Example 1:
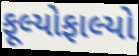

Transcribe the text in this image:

ફૂલ્યોફાલ્યો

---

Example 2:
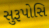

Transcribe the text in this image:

સુરૂપોસિ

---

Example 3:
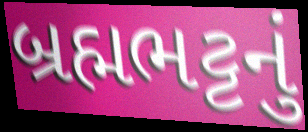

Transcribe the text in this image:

બ્રહ્મભટ્ટનું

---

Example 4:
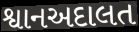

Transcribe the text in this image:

શ્વાનઅદાલત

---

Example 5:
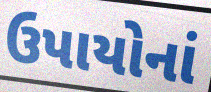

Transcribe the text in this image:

ઉપાયોનાં